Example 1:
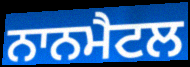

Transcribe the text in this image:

ਨਾਨਮੈਟਲ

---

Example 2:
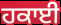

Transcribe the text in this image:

ਹਕਾਈ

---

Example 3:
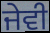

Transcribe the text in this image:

ਜੇਵੀ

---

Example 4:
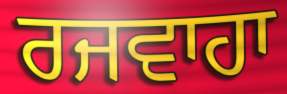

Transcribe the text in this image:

ਰਜਵਾਹਾ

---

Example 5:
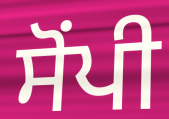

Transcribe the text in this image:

ਸੋੰਪੀ